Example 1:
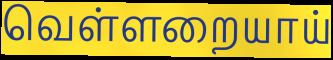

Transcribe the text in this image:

வெள்ளறையாய்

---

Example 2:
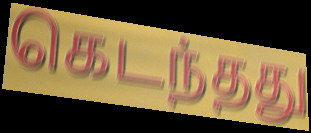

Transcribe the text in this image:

கெடந்தது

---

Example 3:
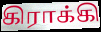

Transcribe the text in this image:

கிராக்கி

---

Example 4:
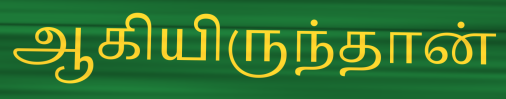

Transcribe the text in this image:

ஆகியிருந்தான்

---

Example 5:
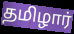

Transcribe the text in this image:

தமிழார்